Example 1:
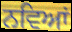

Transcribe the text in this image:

ਨਵਿਆਂ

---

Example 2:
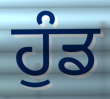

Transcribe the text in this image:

ਹੁੰਡ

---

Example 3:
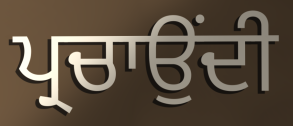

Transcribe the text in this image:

ਪ੍ਰਚਾਉਂਦੀ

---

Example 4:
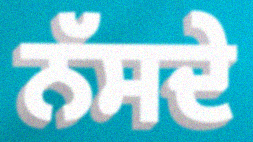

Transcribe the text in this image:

ਨੱਸਦੇ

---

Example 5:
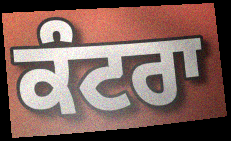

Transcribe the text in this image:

ਕੰਟਰਾ